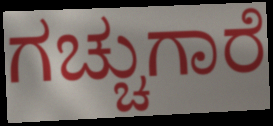
ಗಚ್ಚುಗಾರೆ